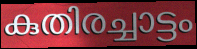
കുതിരച്ചാട്ടം